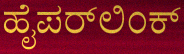
ಹೈಪರ್‌ಲಿಂಕ್